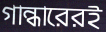
গান্ধারেরই